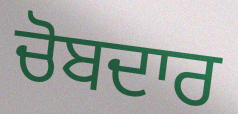
ਚੋਬਦਾਰ